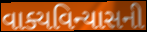
વાક્યવિન્યાસની